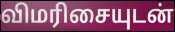
விமரிசையுடன்